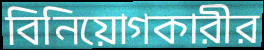
বিনিয়োগকারীর